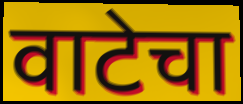
वाटेचा